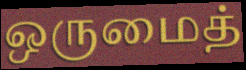
ஒருமைத்